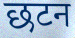
छटन